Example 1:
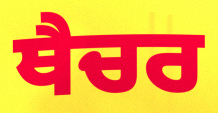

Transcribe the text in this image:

ਥੈਚਰ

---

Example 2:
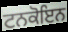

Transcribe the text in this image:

ਟਨਕੋਇਨ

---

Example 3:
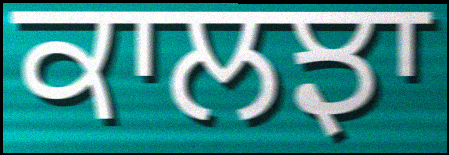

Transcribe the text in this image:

ਕਾਲਝਾ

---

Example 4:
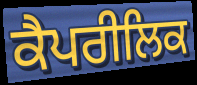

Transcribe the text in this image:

ਕੈਪਰੀਲਿਕ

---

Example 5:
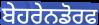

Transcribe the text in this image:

ਬੇਹਰੇਨਡੋਰਫ